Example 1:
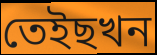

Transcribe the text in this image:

তেইছখন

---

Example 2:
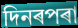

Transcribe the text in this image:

দিনৰপৰা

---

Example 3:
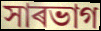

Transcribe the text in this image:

সাৰভাগ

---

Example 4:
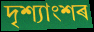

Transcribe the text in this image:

দৃশ্যাংশৰ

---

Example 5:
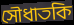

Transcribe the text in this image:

সৌধাতকি